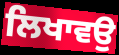
ਲਿਖਾਵਉ